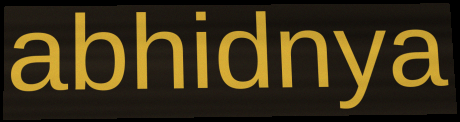
abhidnya